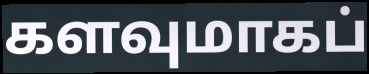
களவுமாகப்